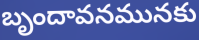
బృందావనమునకు